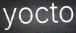
yocto